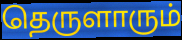
தெருளாரும்